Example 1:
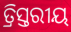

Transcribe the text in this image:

ତ୍ରିସ୍ତରୀୟ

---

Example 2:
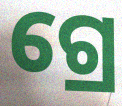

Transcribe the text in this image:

ଗ୍ରେ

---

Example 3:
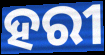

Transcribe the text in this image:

ହରୀ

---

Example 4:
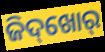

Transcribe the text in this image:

ଜିଦ୍‌ଖୋର୍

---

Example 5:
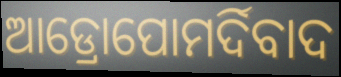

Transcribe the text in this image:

ଆଡ୍ରୋପୋମର୍ଦିବାଦ